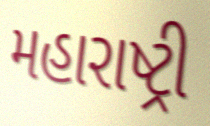
મહારાષ્ટ્રી